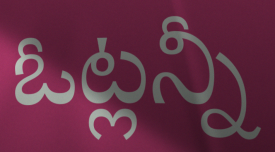
ఓట్లన్నీ